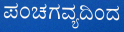
ಪಂಚಗವ್ಯದಿಂದ